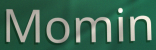
Momin